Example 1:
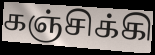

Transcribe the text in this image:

கஞ்சிக்கி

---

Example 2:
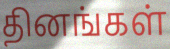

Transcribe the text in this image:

தினங்கள்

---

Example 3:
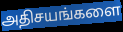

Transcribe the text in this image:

அதிசயங்களை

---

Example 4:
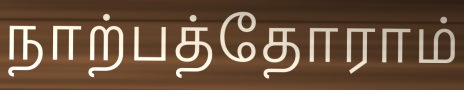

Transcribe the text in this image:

நாற்பத்தோராம்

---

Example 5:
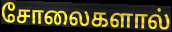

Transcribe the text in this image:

சோலைகளால்